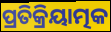
ପ୍ରତିକ୍ରିୟାତ୍ମକ